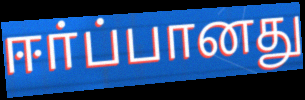
ஈர்ப்பானது